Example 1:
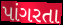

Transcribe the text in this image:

પાંગરતા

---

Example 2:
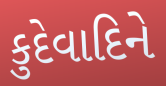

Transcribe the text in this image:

કુદેવાદિને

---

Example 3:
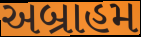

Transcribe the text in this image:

અબ્રાહમ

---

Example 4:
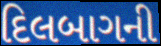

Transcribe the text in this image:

દિલબાગની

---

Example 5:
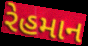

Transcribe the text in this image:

રેહમાન